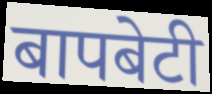
बापबेटी